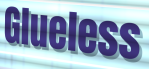
Glueless